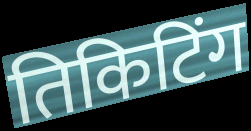
तिकिटिंग